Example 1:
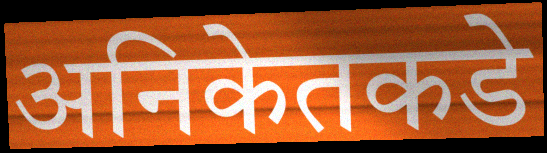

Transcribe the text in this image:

अनिकेतकडे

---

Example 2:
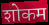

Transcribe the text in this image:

शोकम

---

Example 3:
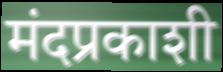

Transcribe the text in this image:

मंदप्रकाशी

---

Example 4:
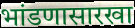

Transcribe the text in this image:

भांडणासारखा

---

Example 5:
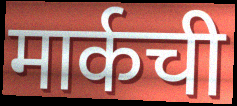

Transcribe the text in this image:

मार्कची